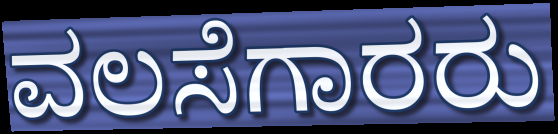
ವಲಸೆಗಾರರು